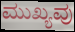
ಮುಖ್ಯವು